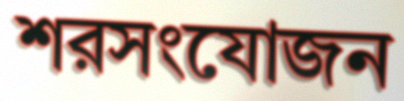
শরসংযোজন